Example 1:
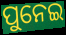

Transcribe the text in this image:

ପୁନେଇ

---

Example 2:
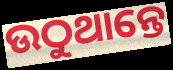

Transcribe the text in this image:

ଉଠୁଥାନ୍ତେ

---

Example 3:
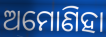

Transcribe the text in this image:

ଅମୋଣିହା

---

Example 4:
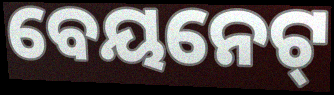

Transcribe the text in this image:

ବେୟନେଟ୍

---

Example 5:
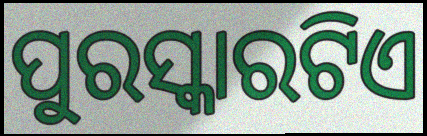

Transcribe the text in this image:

ପୁରସ୍କାରଟିଏ